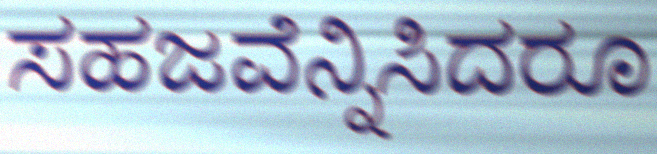
ಸಹಜವೆನ್ನಿಸಿದರೂ